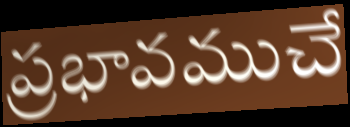
ప్రభావముచే